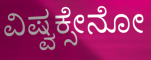
ವಿಷ್ವಕ್ಸೇನೋ